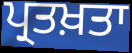
ਪ੍ਰਤਖ਼ਤਾ